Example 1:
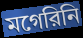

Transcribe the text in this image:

মগেরিনি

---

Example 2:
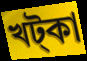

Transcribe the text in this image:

খট্কা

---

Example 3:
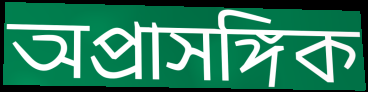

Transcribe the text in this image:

অপ্রাসঙ্গিক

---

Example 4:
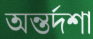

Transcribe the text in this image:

অন্তর্দশা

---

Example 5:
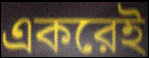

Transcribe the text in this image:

একরেই